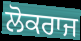
ਲੋਕਰਾਜ